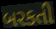
બરકતી